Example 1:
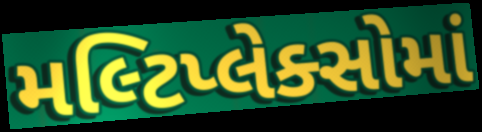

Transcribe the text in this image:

મલ્ટિપ્લેક્સોમાં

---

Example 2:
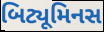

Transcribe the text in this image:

બિટ્યૂમિનસ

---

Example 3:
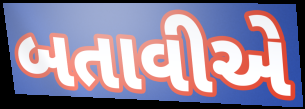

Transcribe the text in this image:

બતાવીએ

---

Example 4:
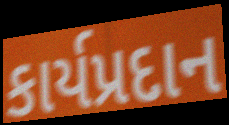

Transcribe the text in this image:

કાર્યપ્રદાન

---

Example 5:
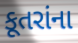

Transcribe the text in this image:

કૂતરાંના